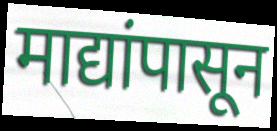
माद्यांपासून